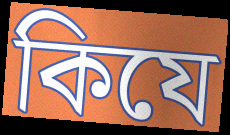
কিযে